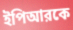
ইপিআরকে